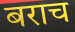
बराच